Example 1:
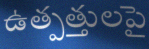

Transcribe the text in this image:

ఉత్పత్తులపై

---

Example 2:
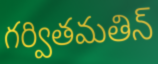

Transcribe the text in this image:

గర్వితమతిన్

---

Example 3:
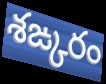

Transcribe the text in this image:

శఙ్కరం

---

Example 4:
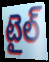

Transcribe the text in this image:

టైల్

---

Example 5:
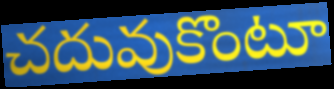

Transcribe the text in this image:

చదువుకొంటూ